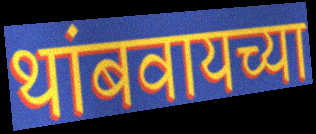
थांबवायच्या